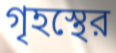
গৃহস্থের